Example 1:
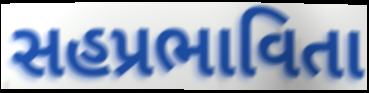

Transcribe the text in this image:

સહપ્રભાવિતા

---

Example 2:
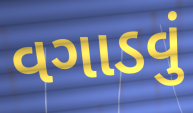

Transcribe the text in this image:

વગાડવું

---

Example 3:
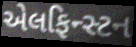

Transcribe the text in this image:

એલફિન્સ્ટન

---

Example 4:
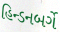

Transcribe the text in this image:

હિન્ડનબર્ગે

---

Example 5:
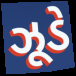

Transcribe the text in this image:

ઝૂડે